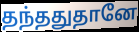
தந்ததுதானே